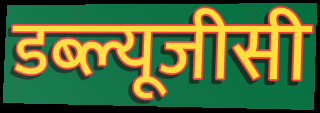
डब्ल्यूजीसी